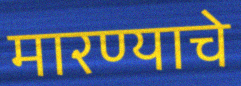
मारण्याचे